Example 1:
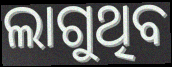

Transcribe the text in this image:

ଲାଗୁଥିବ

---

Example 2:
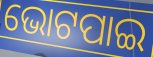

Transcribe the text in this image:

ଭୋଟପାଇ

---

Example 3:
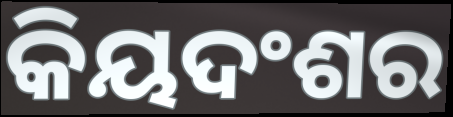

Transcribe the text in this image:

କିୟଦଂଶର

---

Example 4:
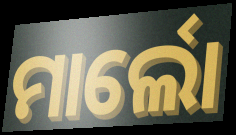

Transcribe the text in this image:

ମାର୍ଲୋ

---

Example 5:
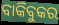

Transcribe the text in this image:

ବାକିବୁକର